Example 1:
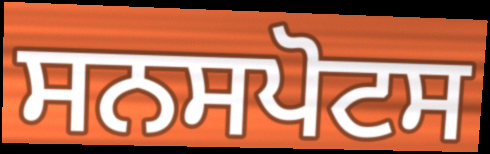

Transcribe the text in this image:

ਸਨਸਪੋਟਸ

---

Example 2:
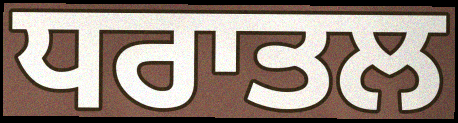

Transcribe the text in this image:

ਧਰਾਤਲ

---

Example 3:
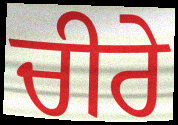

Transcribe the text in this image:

ਚੀਰੇ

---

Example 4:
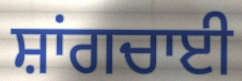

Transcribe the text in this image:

ਸ਼ਾਂਗਚਾਈ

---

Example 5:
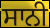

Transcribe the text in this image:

ਸਾਨੀ